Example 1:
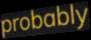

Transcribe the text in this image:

probably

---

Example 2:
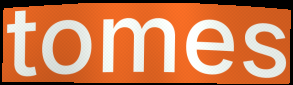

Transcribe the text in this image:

tomes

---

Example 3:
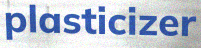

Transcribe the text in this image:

plasticizer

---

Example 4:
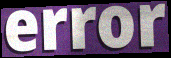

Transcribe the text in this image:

error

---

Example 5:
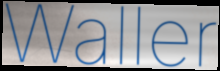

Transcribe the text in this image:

Waller